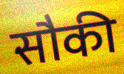
सौकी